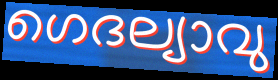
ഗെദല്യാവു